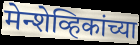
मेन्शेव्हिकांच्या